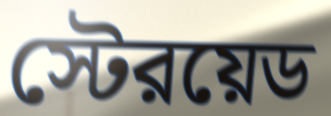
স্টেরয়েড